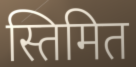
स्तिमित